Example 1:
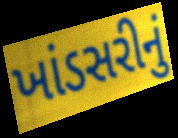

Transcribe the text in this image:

ખાંડસરીનું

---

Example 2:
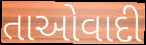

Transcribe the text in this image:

તાઓવાદી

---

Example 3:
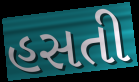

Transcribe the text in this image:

હસતી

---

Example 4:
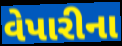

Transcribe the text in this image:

વેપારીના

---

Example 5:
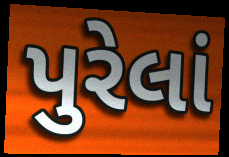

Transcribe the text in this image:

પુરેલાં